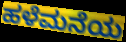
ಹಳೆಮನೆಯ